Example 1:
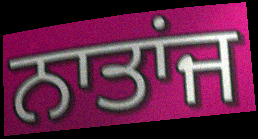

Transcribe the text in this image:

ਨਾਤਾਂਜ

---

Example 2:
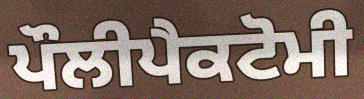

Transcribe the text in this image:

ਪੌਲੀਪੈਕਟੋਮੀ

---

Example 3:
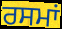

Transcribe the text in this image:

ਰਸਮਾਂ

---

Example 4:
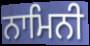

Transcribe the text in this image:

ਨਾਮਿਨੀ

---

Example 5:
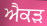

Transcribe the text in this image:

ਐਕੜ